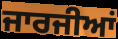
ਜਾਰਜੀਆਂ